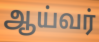
ஆய்வர்